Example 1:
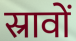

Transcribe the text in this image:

स्रावों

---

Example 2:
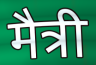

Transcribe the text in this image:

मैत्री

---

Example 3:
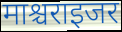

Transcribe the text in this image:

माश्चराइजर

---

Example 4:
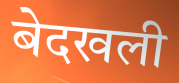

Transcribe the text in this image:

बेदखली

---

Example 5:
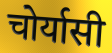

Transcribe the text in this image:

चोर्यासी